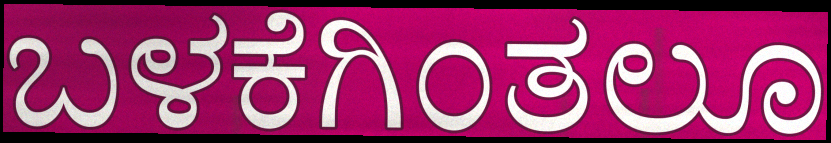
ಬಳಕೆಗಿಂತಲೂ